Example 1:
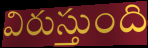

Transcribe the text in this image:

విరుస్తుంది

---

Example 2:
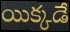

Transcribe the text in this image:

యిక్కడే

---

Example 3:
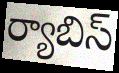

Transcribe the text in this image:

ర్యాబిస్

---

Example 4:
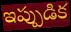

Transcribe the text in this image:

ఇప్పుడిక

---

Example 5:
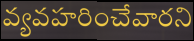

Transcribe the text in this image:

వ్యవహరించేవారని